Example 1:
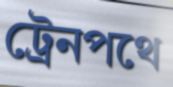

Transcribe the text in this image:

ট্রেনপথে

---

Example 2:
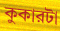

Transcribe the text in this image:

কুকারটা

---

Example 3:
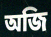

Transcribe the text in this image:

অজি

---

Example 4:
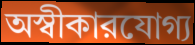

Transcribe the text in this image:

অস্বীকারযোগ্য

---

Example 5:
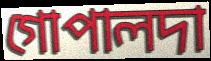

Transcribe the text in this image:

গোপালদা